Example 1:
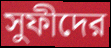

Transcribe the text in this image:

সুফীদের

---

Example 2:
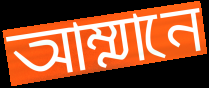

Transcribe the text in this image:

আম্মানে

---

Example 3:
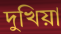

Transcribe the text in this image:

দুখিয়া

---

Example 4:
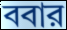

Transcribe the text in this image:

ববার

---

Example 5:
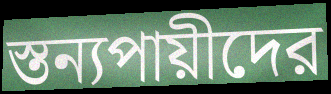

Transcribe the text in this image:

স্তন্যপায়ীদের